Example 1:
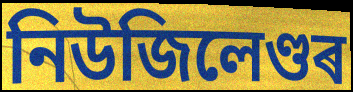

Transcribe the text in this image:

নিউজিলেণ্ডৰ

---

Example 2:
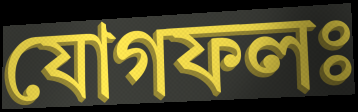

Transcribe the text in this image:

যোগফলঃ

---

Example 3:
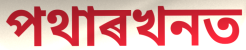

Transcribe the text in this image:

পথাৰখনত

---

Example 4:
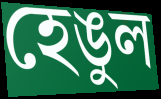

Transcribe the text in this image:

হেঙুল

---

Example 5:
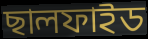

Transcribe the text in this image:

ছালফাইড